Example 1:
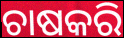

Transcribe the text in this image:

ଚାଷକରି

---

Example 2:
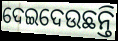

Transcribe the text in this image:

ଦେଇଦେଉଛନ୍ତି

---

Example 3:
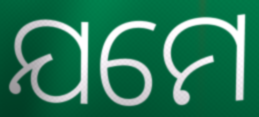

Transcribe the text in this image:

ଯମେ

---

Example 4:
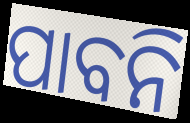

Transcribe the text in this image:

ପାବନି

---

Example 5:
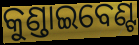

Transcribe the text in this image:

କୁଣ୍ଡାଇବେଣ୍ଟ